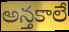
అన్తకాలే